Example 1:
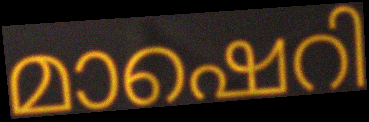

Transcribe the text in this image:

മാഷെറി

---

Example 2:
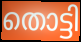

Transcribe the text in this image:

തൊട്ടി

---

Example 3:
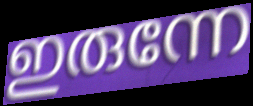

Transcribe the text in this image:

ഇരുന്നേ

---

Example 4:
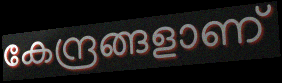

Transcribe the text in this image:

കേന്ദ്രങ്ങളാണ്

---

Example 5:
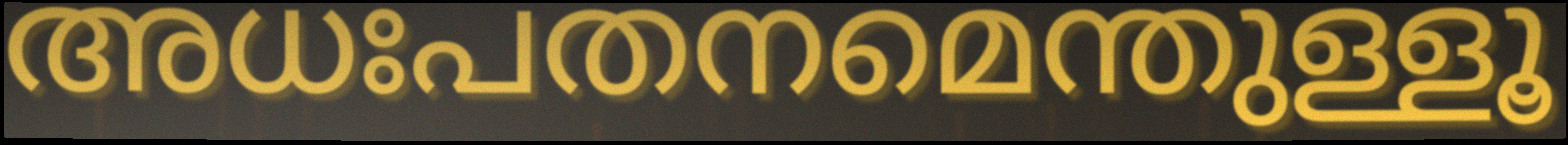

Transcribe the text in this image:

അധഃപതനമെന്തുള്ളൂ